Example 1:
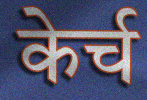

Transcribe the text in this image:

केर्च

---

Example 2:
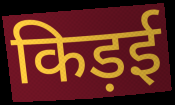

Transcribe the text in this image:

किड़ई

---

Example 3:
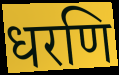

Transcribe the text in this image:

धरणि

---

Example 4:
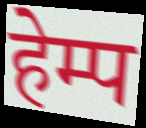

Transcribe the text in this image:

हेम्प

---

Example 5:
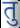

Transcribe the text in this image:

तु